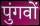
पुंगवों